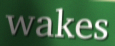
wakes